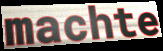
machte